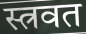
स्त्रवत